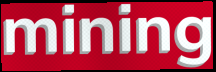
mining